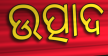
ଉତ୍ପାଦ